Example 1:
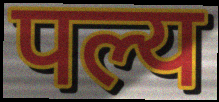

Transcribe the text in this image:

पल्य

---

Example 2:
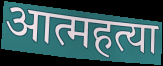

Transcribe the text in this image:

आत्‍महत्‍या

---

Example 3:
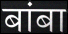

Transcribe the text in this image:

बांबा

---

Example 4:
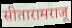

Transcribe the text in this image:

सीतारामराजू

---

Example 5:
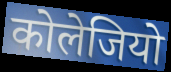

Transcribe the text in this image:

कोलेजियो